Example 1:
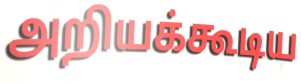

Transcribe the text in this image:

அறியக்கூடிய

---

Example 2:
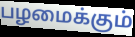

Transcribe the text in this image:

பழமைக்கும்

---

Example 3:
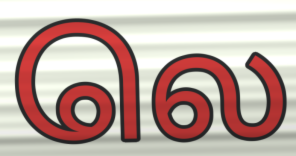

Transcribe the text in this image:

லெ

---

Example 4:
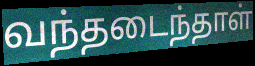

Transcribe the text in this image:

வந்தடைந்தாள்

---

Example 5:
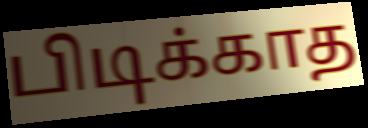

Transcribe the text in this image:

பிடிக்காத